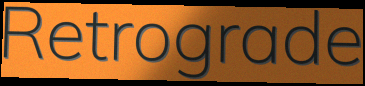
Retrograde